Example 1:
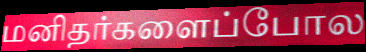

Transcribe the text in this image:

மனிதர்களைப்போல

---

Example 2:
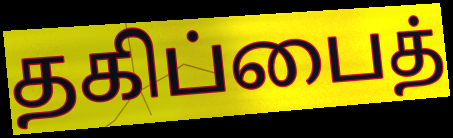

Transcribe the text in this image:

தகிப்பைத்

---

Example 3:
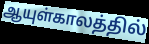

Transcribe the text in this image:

ஆயுள்காலத்தில்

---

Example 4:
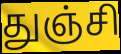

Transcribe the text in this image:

துஞ்சி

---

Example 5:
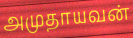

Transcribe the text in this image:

அமுதாயவன்